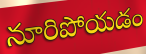
నూరిపోయడం